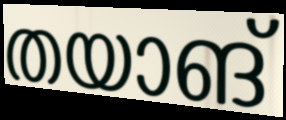
തയാങ്